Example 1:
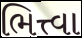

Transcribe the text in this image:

ભિત્ત્વા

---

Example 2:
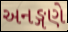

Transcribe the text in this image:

અનઙ્ગણે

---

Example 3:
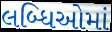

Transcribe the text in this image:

લબ્ધિઓમાં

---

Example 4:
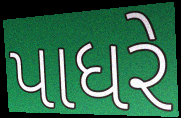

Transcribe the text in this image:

પાધરે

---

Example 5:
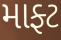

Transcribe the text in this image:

માફ્ટ